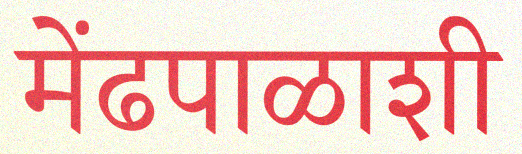
मेंढपाळाशी